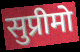
सुप्रीमो